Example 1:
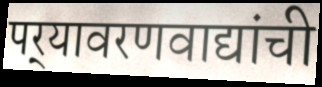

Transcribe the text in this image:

पर्यावरणवाद्यांची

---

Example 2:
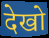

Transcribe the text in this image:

देखो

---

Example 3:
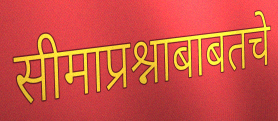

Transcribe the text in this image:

सीमाप्रश्नाबाबतचे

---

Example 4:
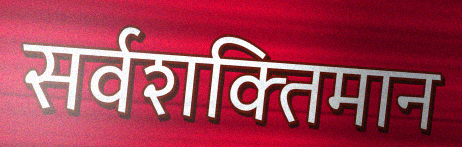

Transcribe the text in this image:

सर्वशक्‍तिमान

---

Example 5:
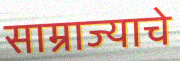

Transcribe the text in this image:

साम्राज्याचे